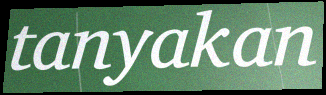
tanyakan